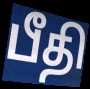
பீதி